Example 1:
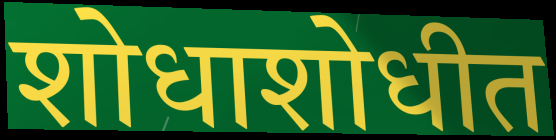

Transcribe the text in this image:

शोधाशोधीत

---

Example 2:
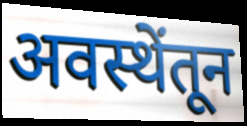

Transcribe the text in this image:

अवस्थेंतून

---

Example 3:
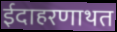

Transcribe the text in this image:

ईदाहरणाथत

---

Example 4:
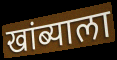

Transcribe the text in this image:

खांब्याला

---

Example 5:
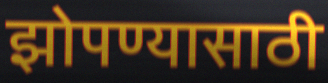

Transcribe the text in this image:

झोपण्यासाठी